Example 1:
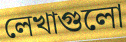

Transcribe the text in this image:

লেখাগুলো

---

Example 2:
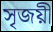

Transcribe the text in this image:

সৃজয়ী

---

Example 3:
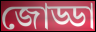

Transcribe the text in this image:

জোড্ডা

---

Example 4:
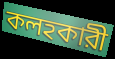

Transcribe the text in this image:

কলহকারী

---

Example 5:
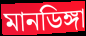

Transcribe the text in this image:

মানডিঙ্গা